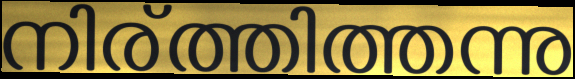
നിര്ത്തിത്തന്നു